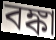
বঙ্কা